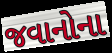
જવાનોના